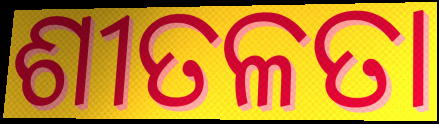
ଶୀତଳତା